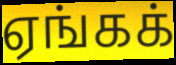
ஏங்கக்